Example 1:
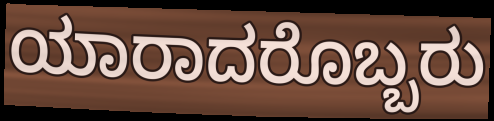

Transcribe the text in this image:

ಯಾರಾದರೊಬ್ಬರು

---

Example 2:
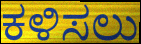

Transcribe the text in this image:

ಕಳಿಸಲು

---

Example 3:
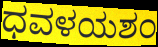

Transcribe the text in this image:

ಧವಳಯಶಂ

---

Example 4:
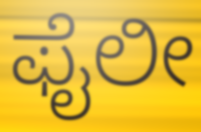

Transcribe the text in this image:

ಫೈಲೀ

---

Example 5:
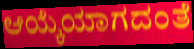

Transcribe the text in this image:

ಆಯ್ಕೆಯಾಗದಂತೆ